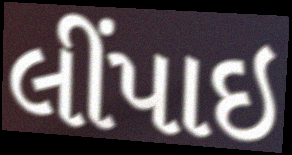
લીંપાઇ